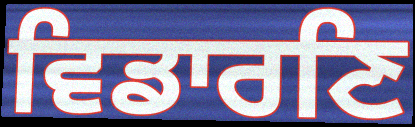
ਵਿਡਾਰਣਿ